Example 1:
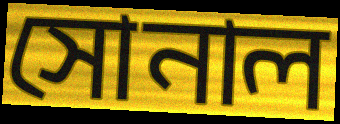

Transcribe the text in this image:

সোনাল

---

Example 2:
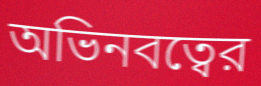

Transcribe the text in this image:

অভিনবত্বের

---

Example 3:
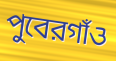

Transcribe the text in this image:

পুবেরগাঁও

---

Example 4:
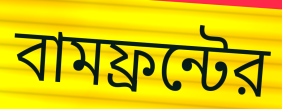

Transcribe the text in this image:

বামফ্রন্টের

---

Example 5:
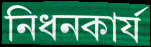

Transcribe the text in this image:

নিধনকার্য